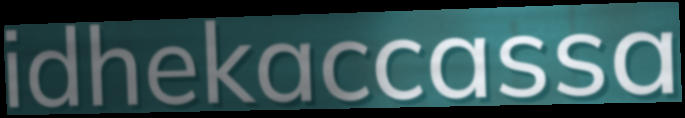
idhekaccassa